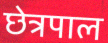
छेत्रपाल